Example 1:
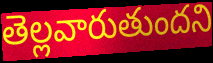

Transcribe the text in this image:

తెల్లవారుతుందని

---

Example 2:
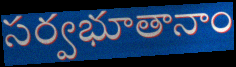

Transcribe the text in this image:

సర్వభూతానాం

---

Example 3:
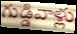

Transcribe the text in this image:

గుడ్డివాళ్లు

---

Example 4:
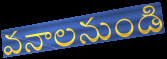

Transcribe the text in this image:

వనాలనుండి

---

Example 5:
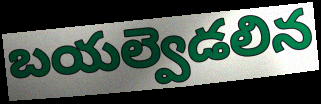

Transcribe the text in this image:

బయల్వెడలిన